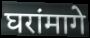
घरांमागे